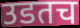
उडतच